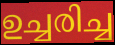
ഉച്ചരിച്ച